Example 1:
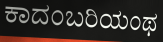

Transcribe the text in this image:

ಕಾದಂಬರಿಯಂಥ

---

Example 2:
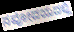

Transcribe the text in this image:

ನವೋದಯದಲ್ಲಿ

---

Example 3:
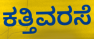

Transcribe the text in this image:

ಕತ್ತಿವರಸೆ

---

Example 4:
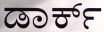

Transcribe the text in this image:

ಡಾರ್ಕ್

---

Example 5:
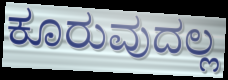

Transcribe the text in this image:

ಕೂರುವುದಲ್ಲ